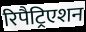
रिपैट्रिएशन